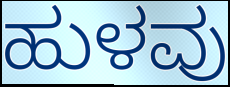
ಹುಳವು